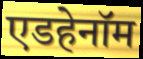
एडहेनॉम